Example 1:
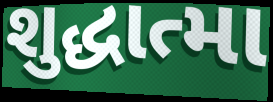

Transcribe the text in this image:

શુદ્ધાત્મા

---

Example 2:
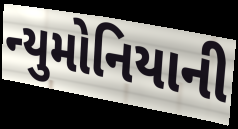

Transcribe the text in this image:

ન્યુમોનિયાની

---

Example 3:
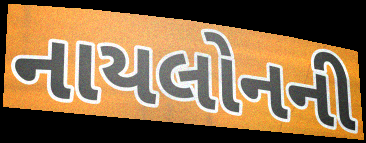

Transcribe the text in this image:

નાયલોનની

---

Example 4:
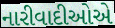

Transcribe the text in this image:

નારીવાદીઓએ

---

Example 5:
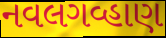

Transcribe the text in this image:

નવલગવ્હાણ